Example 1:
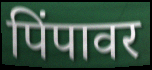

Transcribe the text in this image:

पिंपावर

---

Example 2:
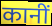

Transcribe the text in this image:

कानीं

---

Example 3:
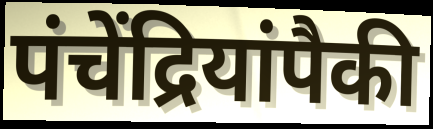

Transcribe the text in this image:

पंचेंद्रियांपैकी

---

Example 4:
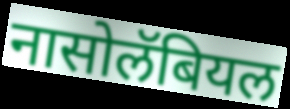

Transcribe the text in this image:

नासोलॅबियल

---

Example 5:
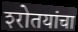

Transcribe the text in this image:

श्रोतयांचा